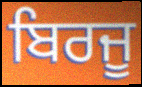
ਬਿਰਜੂ